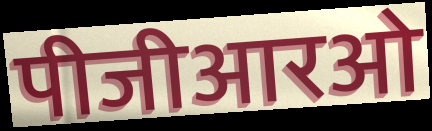
पीजीआरओ